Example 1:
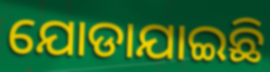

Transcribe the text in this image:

ଯୋଡାଯାଇଛି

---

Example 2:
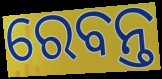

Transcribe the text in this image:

ରେବନ୍ତ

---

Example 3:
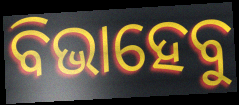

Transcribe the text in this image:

ବିଭାହେବୁ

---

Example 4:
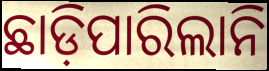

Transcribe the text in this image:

ଛାଡ଼ିପାରିଲାନି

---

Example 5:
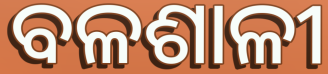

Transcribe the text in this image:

ବଳଶାଳୀ